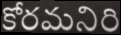
కోరమనిరి